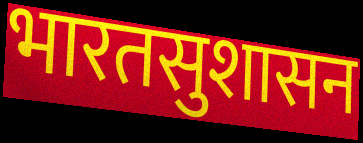
भारतसुशासन